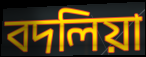
বদলিয়া